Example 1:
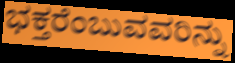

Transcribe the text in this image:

ಭಕ್ತರೆಂಬುವವರಿನ್ನು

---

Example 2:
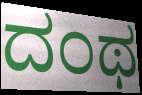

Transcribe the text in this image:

ದಂಥ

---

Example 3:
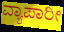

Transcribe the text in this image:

ವ್ಯಾಪಾರೀ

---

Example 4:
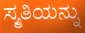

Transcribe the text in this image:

ಸ್ಮೃತಿಯನ್ನು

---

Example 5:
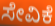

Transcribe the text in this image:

ಸೇವಿಕೆ